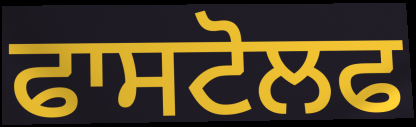
ਫਾਸਟੋਲਫ